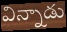
విన్నాడు